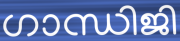
ഗാന്ധിജി